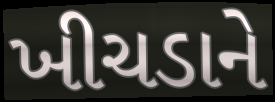
ખીચડાને